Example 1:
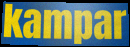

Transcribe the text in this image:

kampar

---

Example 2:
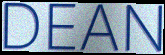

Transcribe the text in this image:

DEAN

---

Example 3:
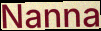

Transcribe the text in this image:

Nanna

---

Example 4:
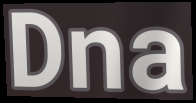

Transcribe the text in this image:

Dna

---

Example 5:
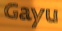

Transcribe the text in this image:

Gayu